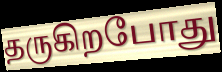
தருகிறபோது